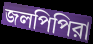
জলপিপিরা